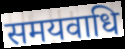
समयवाधि